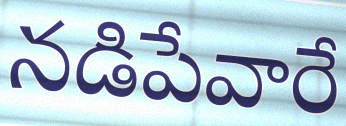
నడిపేవారే